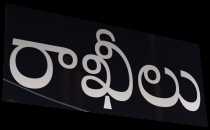
రాఖీలు